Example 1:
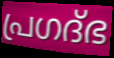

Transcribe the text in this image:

പ്രഗദ്ഭ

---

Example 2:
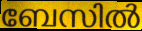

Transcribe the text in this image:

ബേസിൽ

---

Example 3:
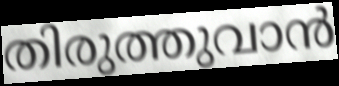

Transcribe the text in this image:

തിരുത്തുവാൻ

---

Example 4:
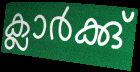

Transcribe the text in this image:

ക്ലാർക്കു്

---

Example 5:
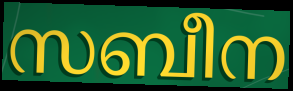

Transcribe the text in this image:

സബീന